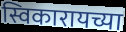
स्विकारायच्या